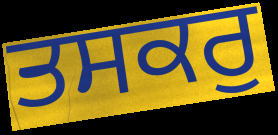
ਤਸਕਰੁ